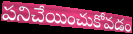
పనిచేయించుకోవడం